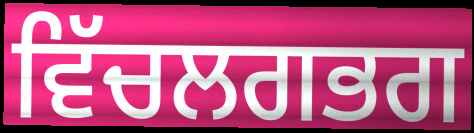
ਵਿੱਚਲਗਭਗ